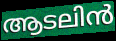
ആടലിൻ